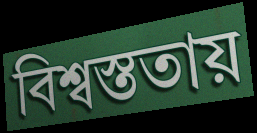
বিশ্বস্ততায়